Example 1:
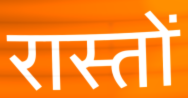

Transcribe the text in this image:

रास्तों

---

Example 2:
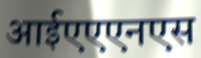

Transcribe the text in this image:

आईएएएनएस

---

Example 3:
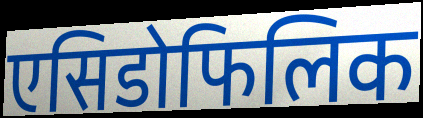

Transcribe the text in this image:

एसिडोफिलिक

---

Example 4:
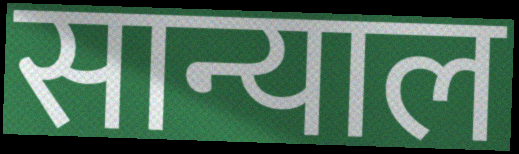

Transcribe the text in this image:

सान्याल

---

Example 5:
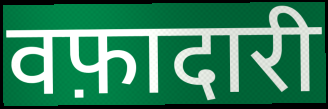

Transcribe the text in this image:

वफ़ादारी